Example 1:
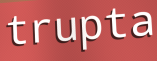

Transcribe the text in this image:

trupta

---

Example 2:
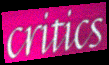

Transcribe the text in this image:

critics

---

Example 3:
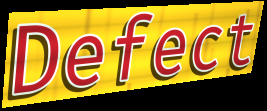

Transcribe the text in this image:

Defect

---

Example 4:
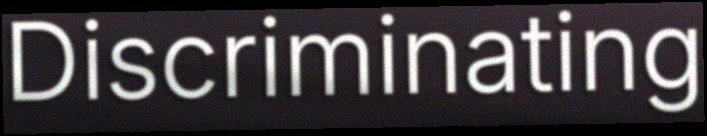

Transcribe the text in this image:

Discriminating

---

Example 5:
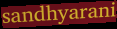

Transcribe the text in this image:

sandhyarani